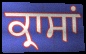
ਕ੍ਰਾਸਾਂ